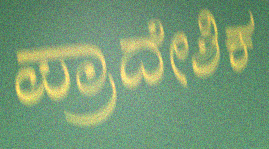
ಪ್ರಾದೇಶಿಕ